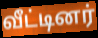
வீட்டினர்